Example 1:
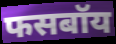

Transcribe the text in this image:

फसबॉय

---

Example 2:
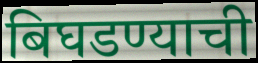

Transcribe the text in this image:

बिघडण्याची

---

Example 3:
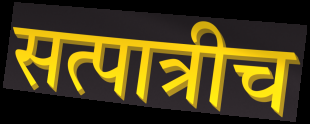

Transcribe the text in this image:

सत्पात्रीच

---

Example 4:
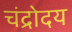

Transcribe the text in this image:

चंद्रोदय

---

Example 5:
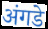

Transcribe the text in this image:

अंगडे